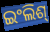
ଇଂଲିଶ୍